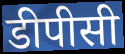
डीपीसी